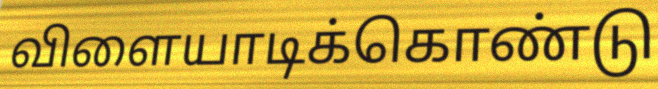
விளையாடிக்கொண்டு